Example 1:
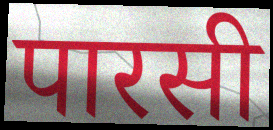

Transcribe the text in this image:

पारसी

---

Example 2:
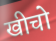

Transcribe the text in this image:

खीचो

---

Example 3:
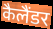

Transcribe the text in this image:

कैलैंडर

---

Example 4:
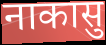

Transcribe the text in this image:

नाकासु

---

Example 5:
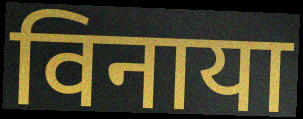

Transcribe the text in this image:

विनाया